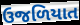
ઉજળિયાત